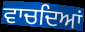
ਵਾਚਦਿਆਂ